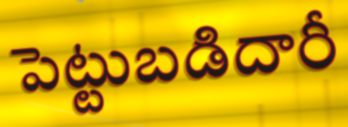
పెట్టుబడిదారీ